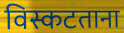
विस्कटताना